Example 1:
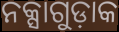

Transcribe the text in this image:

ନକ୍ସାଗୁଡ଼ାକ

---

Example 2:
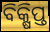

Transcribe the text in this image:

ବିକ୍ଷିପ୍ତ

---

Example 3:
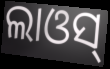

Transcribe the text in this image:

ଲାଓସ୍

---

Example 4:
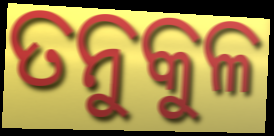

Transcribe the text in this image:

ତନୁକୁଳ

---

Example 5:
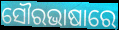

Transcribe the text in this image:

ସୌରଭାଷାରେ